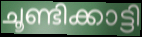
ചൂണ്ടിക്കാട്ടി